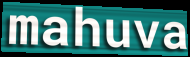
mahuva